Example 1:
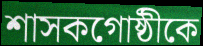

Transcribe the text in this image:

শাসকগোষ্ঠীকে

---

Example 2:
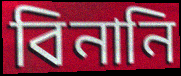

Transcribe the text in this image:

বিনানি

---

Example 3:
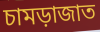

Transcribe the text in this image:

চামড়াজাত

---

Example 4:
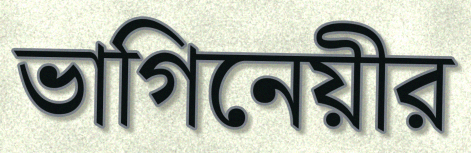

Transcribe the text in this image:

ভাগিনেয়ীর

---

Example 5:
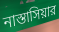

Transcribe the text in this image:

নাস্তাসিয়ার